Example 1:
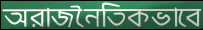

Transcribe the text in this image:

অরাজনৈতিকভাবে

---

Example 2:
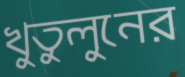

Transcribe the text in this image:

খুতুলুনের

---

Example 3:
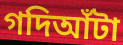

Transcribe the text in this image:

গদিআঁটা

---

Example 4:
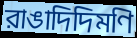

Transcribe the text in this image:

রাঙাদিদিমণি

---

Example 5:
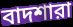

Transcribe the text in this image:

বাদশারা